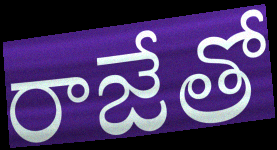
రాజేతో